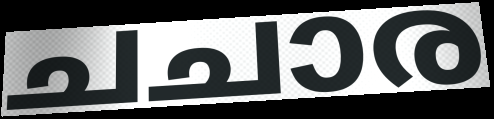
ചചാര